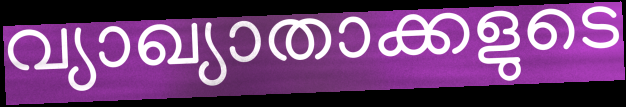
വ്യാഖ്യാതാക്കളുടെ